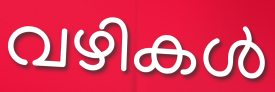
വഴികൾ